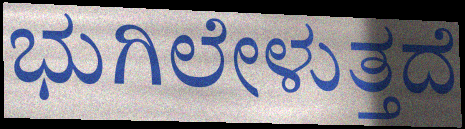
ಭುಗಿಲೇಳುತ್ತದೆ